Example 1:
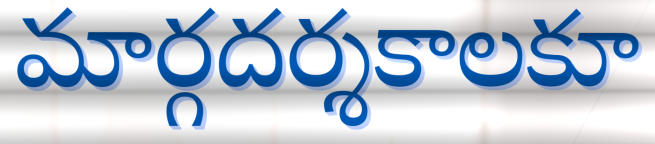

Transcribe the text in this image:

మార్గదర్శకాలకూ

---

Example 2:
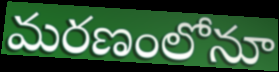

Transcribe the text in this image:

మరణంలోనూ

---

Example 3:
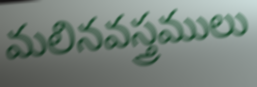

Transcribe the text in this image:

మలినవస్త్రములు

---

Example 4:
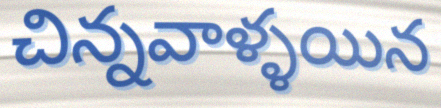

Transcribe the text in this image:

చిన్నవాళ్ళయిన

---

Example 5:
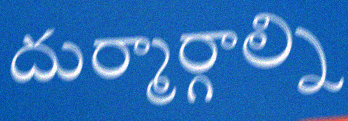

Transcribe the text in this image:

దుర్మార్గాల్ని